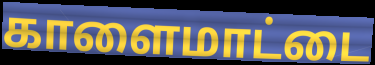
காளைமாட்டை